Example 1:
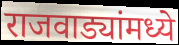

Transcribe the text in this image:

राजवाड्यांमध्ये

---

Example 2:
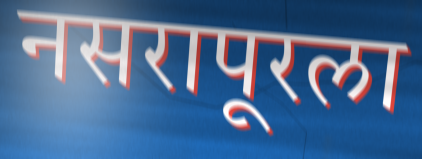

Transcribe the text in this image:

नसरापूरला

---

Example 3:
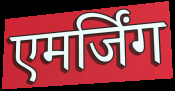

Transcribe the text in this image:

एमर्जिंग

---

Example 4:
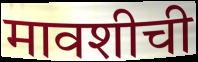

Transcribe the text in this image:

मावशीची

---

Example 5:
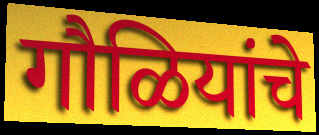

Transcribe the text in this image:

गौळियांचे